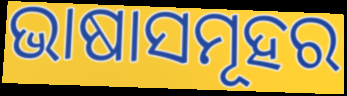
ଭାଷାସମୂହର